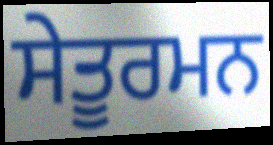
ਸੇਤੂਰਮਨ